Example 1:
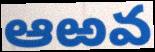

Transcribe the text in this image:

ఆఱవ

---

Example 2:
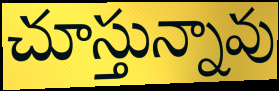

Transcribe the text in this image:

చూస్తున్నావు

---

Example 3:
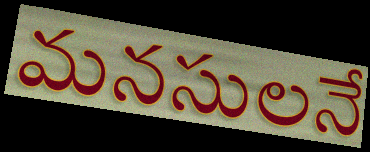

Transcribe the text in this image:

మనసులనే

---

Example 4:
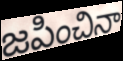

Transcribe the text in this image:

జపించినా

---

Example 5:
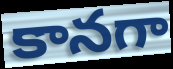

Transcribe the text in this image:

కానగా